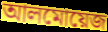
আলমোয়েজ